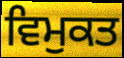
ਵਿਮੁਕਤ